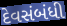
દેવસંબંધી